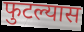
फुटल्यास